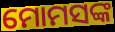
ମୋମସଙ୍କ